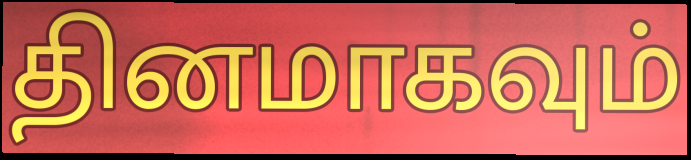
தினமாகவும்